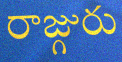
రాజ్గురు